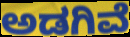
ಅಡಗಿವೆ